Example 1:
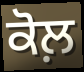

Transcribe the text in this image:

ਕੋਲ਼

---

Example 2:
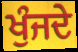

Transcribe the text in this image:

ਖੁੰਜਦੇ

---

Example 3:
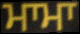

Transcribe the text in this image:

ਮਾਮਾ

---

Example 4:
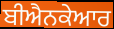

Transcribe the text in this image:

ਬੀਐਨਕੇਆਰ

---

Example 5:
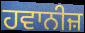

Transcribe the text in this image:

ਹਵਾਨੀਜ਼